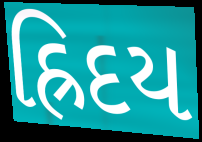
હ્રિદય